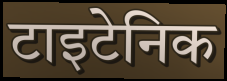
टाइटेनिक